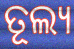
ତୂଲ୍ୟ